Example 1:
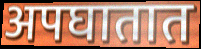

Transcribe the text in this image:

अपघातात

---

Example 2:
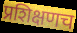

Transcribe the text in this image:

प्रशिक्षणच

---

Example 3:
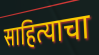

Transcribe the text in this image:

साहित्याचा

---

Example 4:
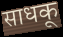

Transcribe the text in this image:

साधकू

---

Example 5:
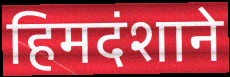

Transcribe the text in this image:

हिमदंशाने